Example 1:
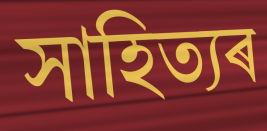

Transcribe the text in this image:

সাহিত্যৰ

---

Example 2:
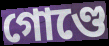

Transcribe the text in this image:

গোণ্ডে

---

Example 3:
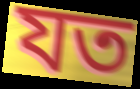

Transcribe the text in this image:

যত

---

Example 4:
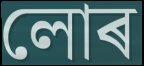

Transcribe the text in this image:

লোৰ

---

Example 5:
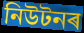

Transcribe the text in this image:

নিউটনৰ